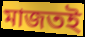
মাজতই